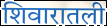
शिवारातली